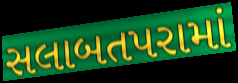
સલાબતપરામાં